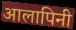
आलापिनी